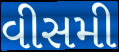
વીસમી